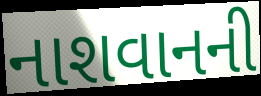
નાશવાનની